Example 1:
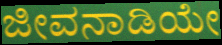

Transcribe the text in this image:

ಜೀವನಾಡಿಯೇ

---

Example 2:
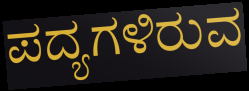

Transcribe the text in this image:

ಪದ್ಯಗಳಿರುವ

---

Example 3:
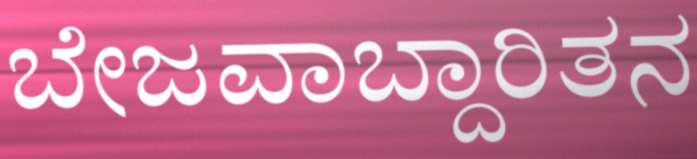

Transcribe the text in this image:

ಬೇಜವಾಬ್ದಾರಿತನ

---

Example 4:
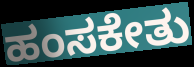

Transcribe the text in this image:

ಹಂಸಕೇತು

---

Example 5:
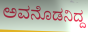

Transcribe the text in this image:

ಅವನೊಡನಿದ್ದ